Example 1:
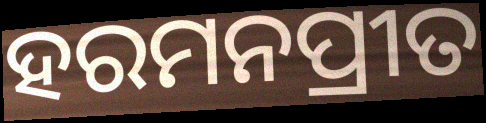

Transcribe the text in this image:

ହରମନପ୍ରୀତ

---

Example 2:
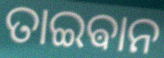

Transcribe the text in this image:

ତାଇଵାନ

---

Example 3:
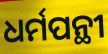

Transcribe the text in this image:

ଧର୍ମପନ୍ଥୀ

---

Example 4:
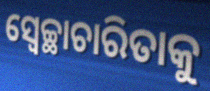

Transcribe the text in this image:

ସ୍ଵେଚ୍ଛାଚାରିତାକୁ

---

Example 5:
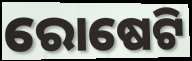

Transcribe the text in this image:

ରୋଷେଟି